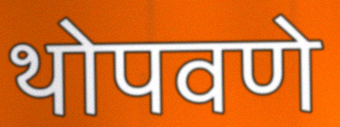
थोपवणे